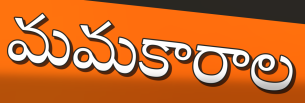
మమకారాల